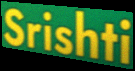
Srishti